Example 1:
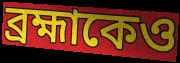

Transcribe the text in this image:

ব্রহ্মাকেও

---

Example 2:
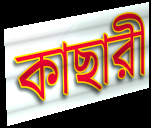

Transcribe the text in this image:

কাছারী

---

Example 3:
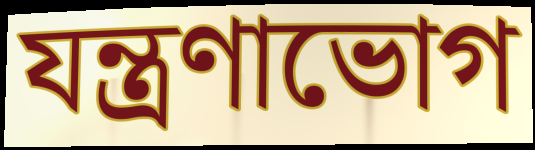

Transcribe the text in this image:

যন্ত্রণাভোগ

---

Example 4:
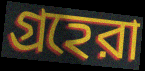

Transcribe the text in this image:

গ্রহেরা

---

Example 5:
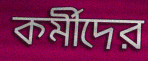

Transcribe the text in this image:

কর্মীদের